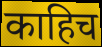
काहिच